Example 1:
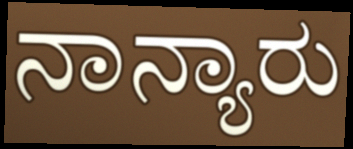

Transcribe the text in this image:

ನಾನ್ಯಾರು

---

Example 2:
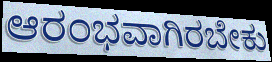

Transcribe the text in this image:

ಆರಂಭವಾಗಿರಬೇಕು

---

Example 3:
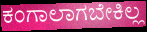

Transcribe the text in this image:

ಕಂಗಾಲಾಗಬೇಕಿಲ್ಲ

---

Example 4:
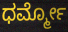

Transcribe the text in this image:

ಧರ್ಮ್ಮೋ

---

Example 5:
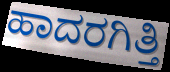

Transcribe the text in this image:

ಹಾದರಗಿತ್ತಿ